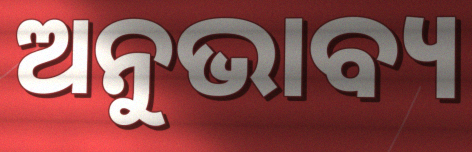
ଅନୁଭାବ୍ୟ